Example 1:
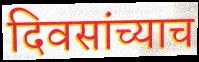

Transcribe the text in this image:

दिवसांच्याच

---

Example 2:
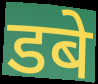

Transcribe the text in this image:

डबे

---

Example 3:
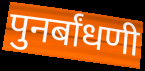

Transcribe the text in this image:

पुनर्बांधणी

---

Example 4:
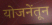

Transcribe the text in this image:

योजनेंतून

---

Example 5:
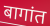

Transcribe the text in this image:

बागांत